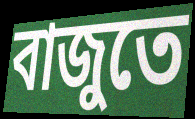
বাজুতে